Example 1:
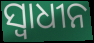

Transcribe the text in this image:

ସ୍ଵାଧୀନ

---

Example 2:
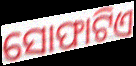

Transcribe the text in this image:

ସୋଫାଟିଏ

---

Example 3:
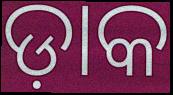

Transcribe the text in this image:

ଡ଼ାକ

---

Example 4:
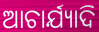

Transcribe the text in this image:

ଆଚାର୍ଯ୍ୟାଦି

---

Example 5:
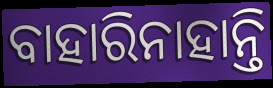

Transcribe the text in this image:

ବାହାରିନାହାନ୍ତି